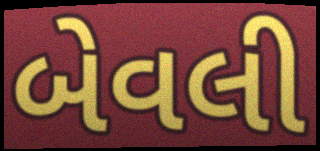
બેવલી